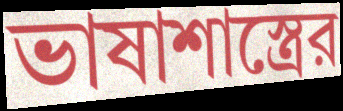
ভাষাশাস্ত্রের